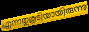
എന്നതുകൂടിയായിരുന്നു